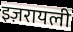
इज़रायली